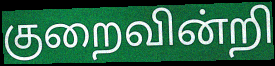
குறைவின்றி